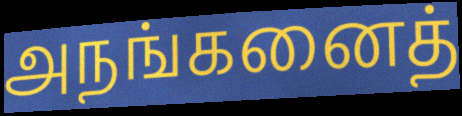
அநங்கனைத்